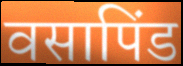
वसापिंड